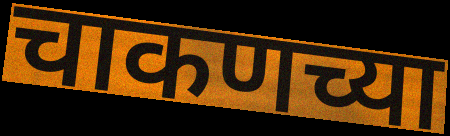
चाकणच्या